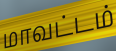
மாவட்டம்